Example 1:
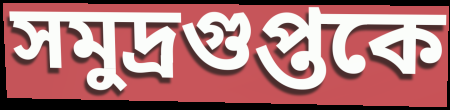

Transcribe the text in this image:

সমুদ্রগুপ্তকে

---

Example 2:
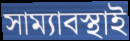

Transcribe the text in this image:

সাম্যাবস্থাই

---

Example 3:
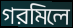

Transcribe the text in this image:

গরমিলে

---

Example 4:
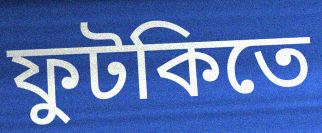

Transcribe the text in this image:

ফুটকিতে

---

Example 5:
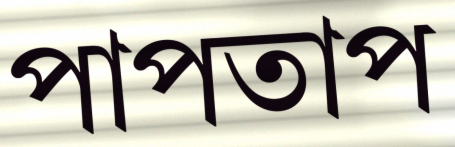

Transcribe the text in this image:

পাপতাপ